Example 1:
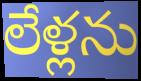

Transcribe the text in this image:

లేళ్లను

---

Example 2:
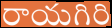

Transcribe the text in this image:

రాయగిరి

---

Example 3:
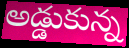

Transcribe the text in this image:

అడ్డుకున్న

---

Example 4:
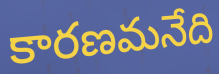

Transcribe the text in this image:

కారణమనేది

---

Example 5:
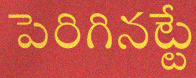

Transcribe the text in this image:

పెరిగినట్టే